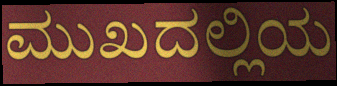
ಮುಖದಲ್ಲಿಯ